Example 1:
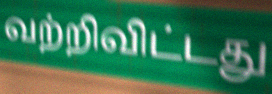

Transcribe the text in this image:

வற்றிவிட்டது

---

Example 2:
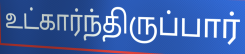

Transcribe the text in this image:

உட்கார்ந்திருப்பார்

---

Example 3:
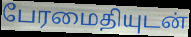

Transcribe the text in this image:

பேரமைதியுடன்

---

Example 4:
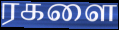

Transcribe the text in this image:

ரகளை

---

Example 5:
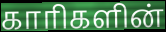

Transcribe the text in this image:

காரிகளின்